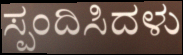
ಸ್ಪಂದಿಸಿದಳು